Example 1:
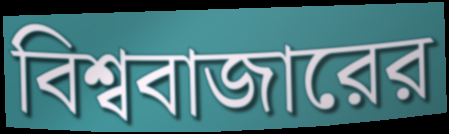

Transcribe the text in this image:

বিশ্ববাজারের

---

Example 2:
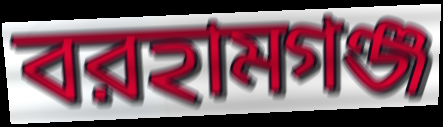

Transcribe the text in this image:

বরহামগঞ্জ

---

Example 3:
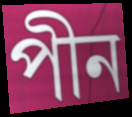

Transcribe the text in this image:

পীন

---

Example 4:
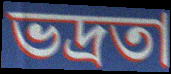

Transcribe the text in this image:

ভদ্রতা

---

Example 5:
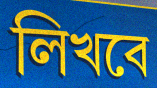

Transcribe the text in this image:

লিখবে